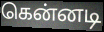
கென்னடி